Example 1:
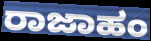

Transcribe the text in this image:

ರಾಜಾಹಂ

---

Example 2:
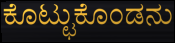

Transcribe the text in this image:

ಕೊಟ್ಟುಕೊಂಡನು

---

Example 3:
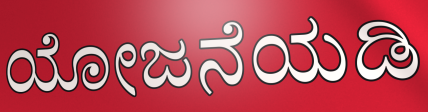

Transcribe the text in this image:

ಯೋಜನೆಯಡಿ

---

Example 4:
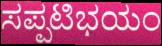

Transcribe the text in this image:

ಸಪ್ಪಟಿಭಯಂ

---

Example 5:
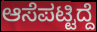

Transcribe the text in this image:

ಆಸೆಪಟ್ಟಿದ್ದೆ